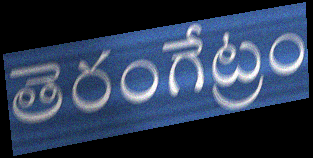
తెరంగేట్రం